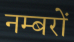
नम्बरों